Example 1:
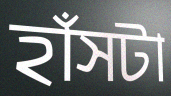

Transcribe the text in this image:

হাঁসটা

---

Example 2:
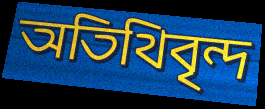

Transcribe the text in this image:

অতিথিবৃন্দ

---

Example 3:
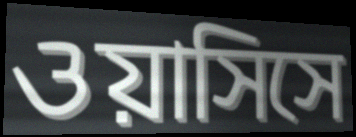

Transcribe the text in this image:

ওয়াসিসে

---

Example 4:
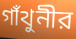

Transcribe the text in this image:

গাঁথুনীর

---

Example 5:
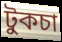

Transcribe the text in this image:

টুকচা